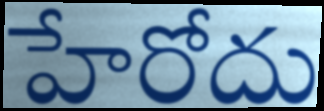
హేరోదు